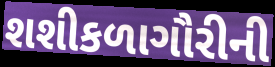
શશીકળાગૌરીની